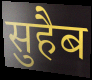
सुहैब